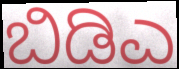
ಬಿಡಿಎ